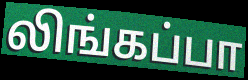
லிங்கப்பா